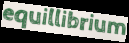
equillibrium